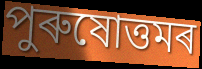
পুৰুষোত্তমৰ